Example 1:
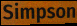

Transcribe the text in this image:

Simpson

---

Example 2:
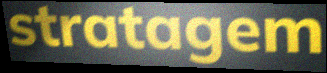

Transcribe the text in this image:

stratagem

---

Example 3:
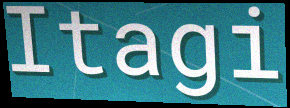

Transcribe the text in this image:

Itagi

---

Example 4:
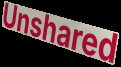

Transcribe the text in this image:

Unshared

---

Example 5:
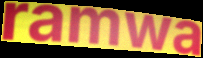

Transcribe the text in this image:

ramwa